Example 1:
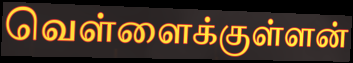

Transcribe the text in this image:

வெள்ளைக்குள்ளன்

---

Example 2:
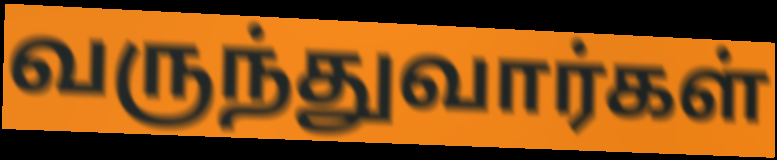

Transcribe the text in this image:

வருந்துவார்கள்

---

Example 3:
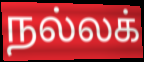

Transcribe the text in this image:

நல்லக்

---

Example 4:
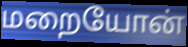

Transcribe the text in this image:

மறையோன்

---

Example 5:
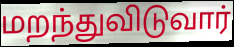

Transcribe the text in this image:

மறந்துவிடுவார்